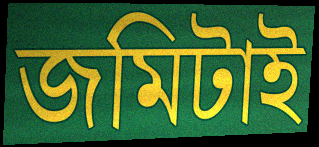
জমিটাই